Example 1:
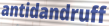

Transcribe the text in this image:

antidandruff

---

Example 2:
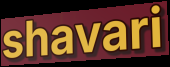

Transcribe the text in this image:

shavari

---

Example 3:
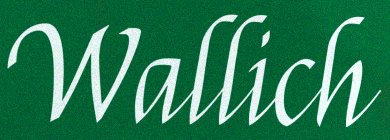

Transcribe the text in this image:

Wallich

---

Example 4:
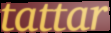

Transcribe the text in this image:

tattar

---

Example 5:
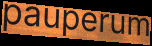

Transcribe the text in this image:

pauperum